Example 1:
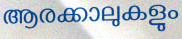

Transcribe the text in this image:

ആരക്കാലുകളും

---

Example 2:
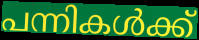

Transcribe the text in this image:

പന്നികൾക്ക്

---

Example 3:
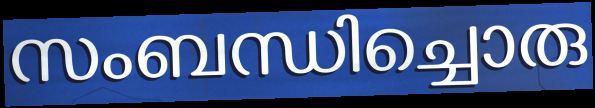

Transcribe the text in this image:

സംബന്ധിച്ചൊരു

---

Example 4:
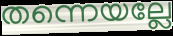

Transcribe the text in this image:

തന്നെയല്ലേ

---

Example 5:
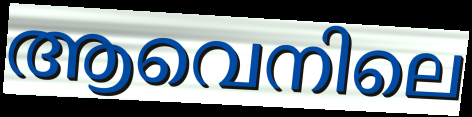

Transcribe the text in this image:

ആവെനിലെ